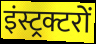
इंस्ट्रक्टरों